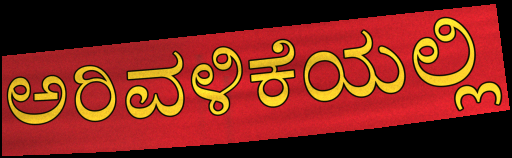
ಅರಿವಳಿಕೆಯಲ್ಲಿ